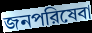
জনপরিষেবা